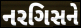
નરગિસને